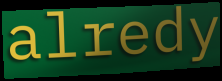
alredy